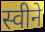
स्वीने